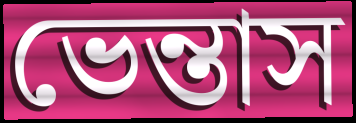
ভেন্তাস